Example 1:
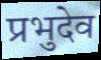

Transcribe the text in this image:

प्रभुदेव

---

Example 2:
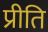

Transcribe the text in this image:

प्रीति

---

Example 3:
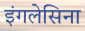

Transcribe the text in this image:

इंगलेसिना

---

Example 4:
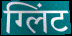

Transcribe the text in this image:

ग्लिंट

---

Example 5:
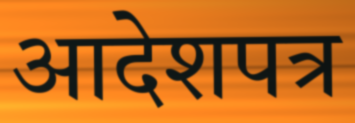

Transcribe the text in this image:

आदेशपत्र